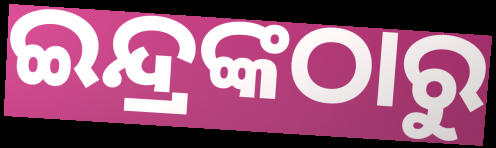
ଇନ୍ଦ୍ରଙ୍କଠାରୁ